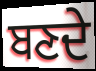
ਬਣਦੇ